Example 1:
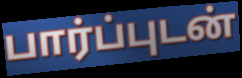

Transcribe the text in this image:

பார்ப்புடன்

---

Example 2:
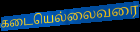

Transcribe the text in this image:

கடையெல்லைவரை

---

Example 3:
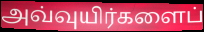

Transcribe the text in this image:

அவ்வுயிர்களைப்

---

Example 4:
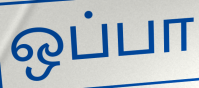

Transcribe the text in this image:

ஒப்பா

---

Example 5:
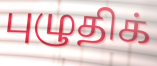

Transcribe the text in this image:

புழுதிக்